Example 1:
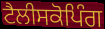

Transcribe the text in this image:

ਟੈਲੀਸਕੋਪਿੰਗ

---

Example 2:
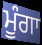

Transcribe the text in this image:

ਮੂੰਗਾ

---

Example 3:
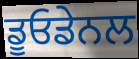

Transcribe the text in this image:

ਡੂਓਡੇਨਲ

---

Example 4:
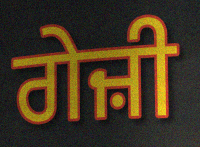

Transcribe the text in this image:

ਗੇਜ਼ੀ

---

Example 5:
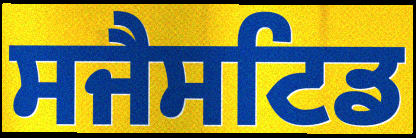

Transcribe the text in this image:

ਸਜੈਸਟਿਡ